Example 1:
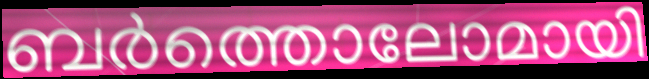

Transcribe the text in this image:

ബർത്തൊലോമായി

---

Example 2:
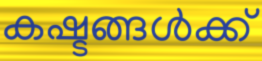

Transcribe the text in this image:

കഷ്ടങ്ങൾക്ക്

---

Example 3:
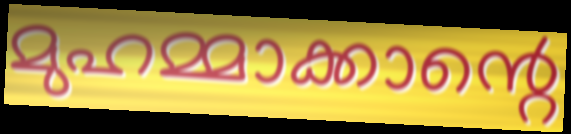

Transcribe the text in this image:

മുഹമ്മാക്കാന്റെ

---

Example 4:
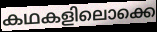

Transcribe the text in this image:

കഥകളിലൊക്കെ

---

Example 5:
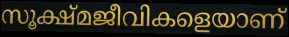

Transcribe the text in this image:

സൂക്ഷ്മജീവികളെയാണ്